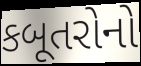
કબૂતરોનો